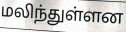
மலிந்துள்ளன